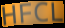
HFCL